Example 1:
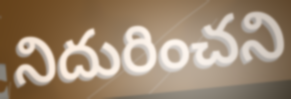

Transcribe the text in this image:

నిదురించని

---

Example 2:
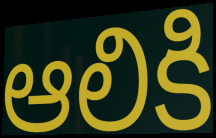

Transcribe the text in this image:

ఆలికి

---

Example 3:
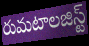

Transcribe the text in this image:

రుమటాలజిస్ట్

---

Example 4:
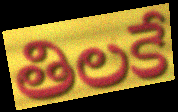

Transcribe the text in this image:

తిలకే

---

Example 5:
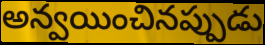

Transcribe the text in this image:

అన్వయించినప్పుడు